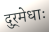
दुर्मेधाः